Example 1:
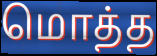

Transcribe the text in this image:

மொத்த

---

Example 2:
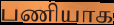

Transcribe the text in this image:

பணியாக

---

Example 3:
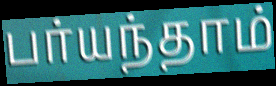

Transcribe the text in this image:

பர்யந்தாம்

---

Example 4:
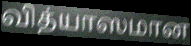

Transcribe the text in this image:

வித்யாஸமான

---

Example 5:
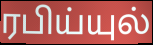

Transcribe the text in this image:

ரபிய்யுல்